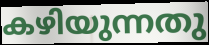
കഴിയുന്നതു